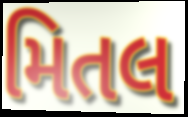
મિતલ